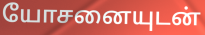
யோசனையுடன்